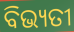
ବିଭ୍ୟତୀ